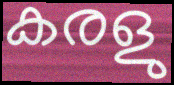
കരളു